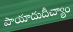
పాయాదుదీచ్యాం